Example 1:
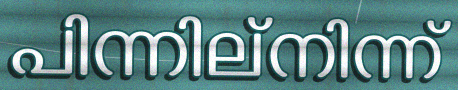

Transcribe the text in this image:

പിന്നില്നിന്ന്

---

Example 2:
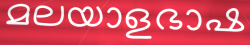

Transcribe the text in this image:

മലയാളഭാഷ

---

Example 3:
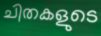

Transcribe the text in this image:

ചിതകളുടെ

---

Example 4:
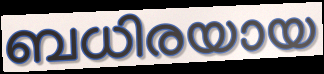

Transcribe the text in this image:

ബധിരയായ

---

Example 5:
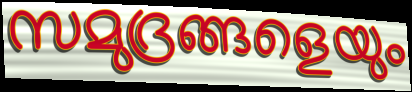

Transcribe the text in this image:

സമുദ്രങ്ങളെയും